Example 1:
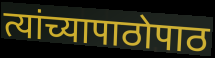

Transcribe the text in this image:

त्यांच्यापाठोपाठ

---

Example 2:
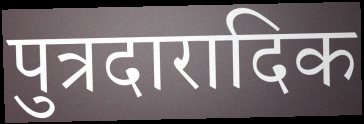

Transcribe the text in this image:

पुत्रदारादिक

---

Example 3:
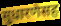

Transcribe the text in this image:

सुधारणेसह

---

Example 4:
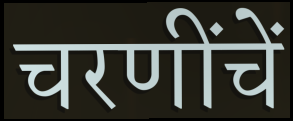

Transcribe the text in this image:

चरणींचें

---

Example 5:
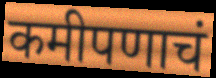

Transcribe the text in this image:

कमीपणाचं